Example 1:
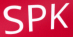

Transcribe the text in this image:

SPK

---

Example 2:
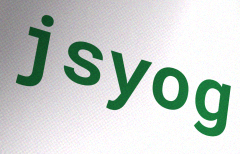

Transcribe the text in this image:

jsyog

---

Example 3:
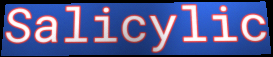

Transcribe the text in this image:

Salicylic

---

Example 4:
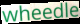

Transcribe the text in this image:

wheedle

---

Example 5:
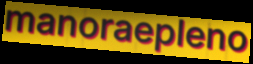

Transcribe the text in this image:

manoraepleno